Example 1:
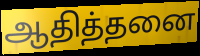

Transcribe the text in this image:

ஆதித்தனை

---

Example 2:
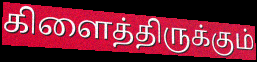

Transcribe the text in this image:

கிளைத்திருக்கும்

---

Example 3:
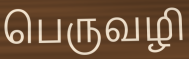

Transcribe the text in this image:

பெருவழி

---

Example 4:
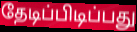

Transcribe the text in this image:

தேடிப்பிடிப்பது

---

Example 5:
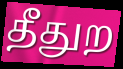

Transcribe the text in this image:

தீதுற